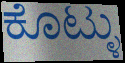
ಕೊಟ್ಳು